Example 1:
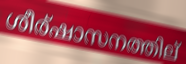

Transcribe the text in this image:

ശീര്ഷാസനത്തില്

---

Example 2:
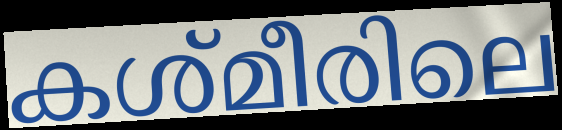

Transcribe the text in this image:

കശ്മീരിലെ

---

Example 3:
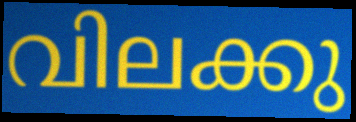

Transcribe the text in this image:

വിലക്കു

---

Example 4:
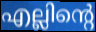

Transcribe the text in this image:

എല്ലിന്റെ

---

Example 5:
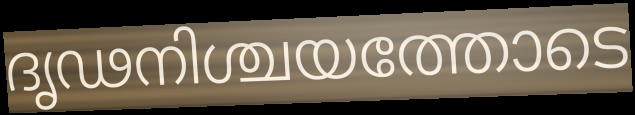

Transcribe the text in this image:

ദൃഢനിശ്ചയത്തോടെ